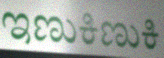
ಇಣುಕಿಣುಕಿ